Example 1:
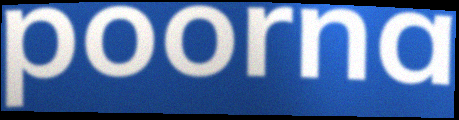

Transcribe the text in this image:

poorna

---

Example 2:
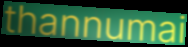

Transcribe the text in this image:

thannumai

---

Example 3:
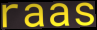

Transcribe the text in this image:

raas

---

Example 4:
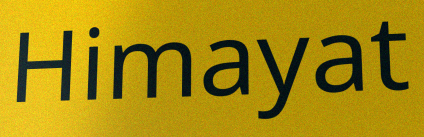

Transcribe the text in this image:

Himayat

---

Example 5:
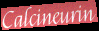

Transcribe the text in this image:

Calcineurin